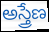
అస్త్రేణ